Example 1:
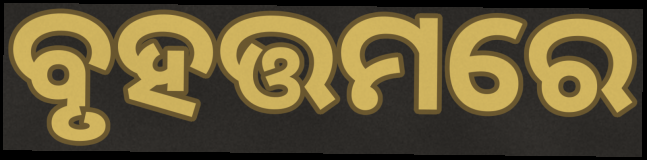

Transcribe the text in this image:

ବୃହତ୍ତମରେ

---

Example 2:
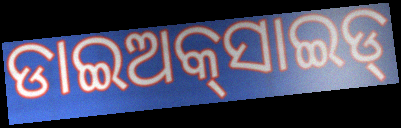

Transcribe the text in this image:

ଡାଇଅକ୍‌ସାଇଡ୍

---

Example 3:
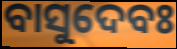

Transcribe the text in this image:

ବାସୁଦେବଃ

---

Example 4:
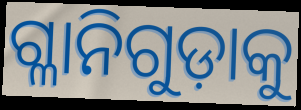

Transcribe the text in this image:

ଗ୍ଳାନିଗୁଡ଼ାକୁ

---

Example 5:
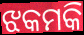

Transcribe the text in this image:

ଝକମକି